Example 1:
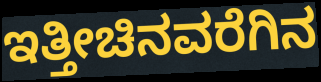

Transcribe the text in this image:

ಇತ್ತೀಚಿನವರೆಗಿನ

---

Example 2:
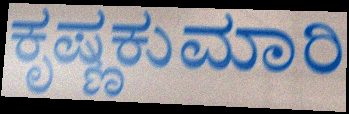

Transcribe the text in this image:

ಕೃಷ್ಣಕುಮಾರಿ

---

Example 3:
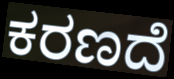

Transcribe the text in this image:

ಕರಣದೆ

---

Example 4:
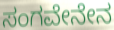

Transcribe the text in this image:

ಸಂಗವೇನೇನ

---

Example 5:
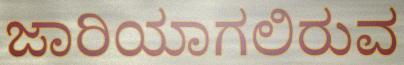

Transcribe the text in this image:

ಜಾರಿಯಾಗಲಿರುವ